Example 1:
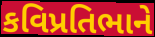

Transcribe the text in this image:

કવિપ્રતિભાને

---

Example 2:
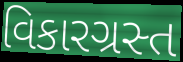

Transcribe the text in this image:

વિકારગ્રસ્ત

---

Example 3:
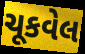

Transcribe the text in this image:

ચૂકવેલ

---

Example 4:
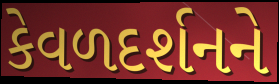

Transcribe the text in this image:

કેવળદર્શનને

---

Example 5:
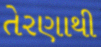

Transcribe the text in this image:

તેરણાથી